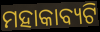
ମହାକାବ୍ୟଟି